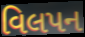
વિલપન